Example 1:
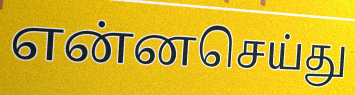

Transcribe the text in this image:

என்னசெய்து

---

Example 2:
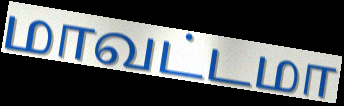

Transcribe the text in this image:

மாவட்டமா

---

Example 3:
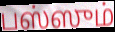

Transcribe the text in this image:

பஸ்ஸும்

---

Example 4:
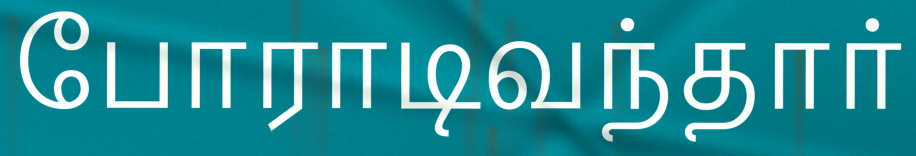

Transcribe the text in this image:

போராடிவந்தார்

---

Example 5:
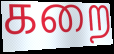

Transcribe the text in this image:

கறை